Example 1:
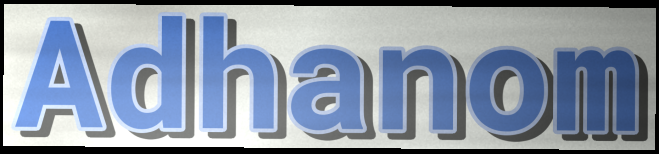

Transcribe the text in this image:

Adhanom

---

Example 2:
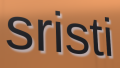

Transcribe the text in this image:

sristi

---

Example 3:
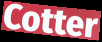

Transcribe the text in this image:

Cotter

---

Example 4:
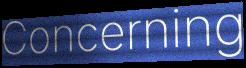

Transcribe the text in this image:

Concerning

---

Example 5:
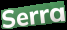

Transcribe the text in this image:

Serra